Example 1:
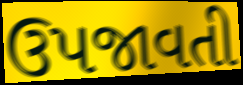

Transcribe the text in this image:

ઉપજાવતી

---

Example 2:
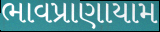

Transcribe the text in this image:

ભાવપ્રાણાયામ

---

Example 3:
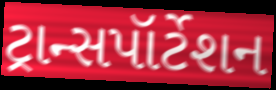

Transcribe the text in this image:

ટ્રાન્સપૉર્ટેશન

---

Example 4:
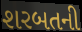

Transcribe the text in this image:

શરબતની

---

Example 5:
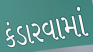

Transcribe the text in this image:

કંડારવામાં